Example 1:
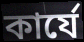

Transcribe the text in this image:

কার্যে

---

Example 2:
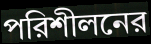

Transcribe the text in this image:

পরিশীলনের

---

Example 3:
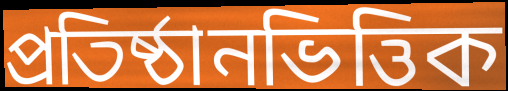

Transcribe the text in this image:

প্রতিষ্ঠানভিত্তিক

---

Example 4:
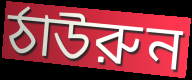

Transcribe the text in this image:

ঠাউরুন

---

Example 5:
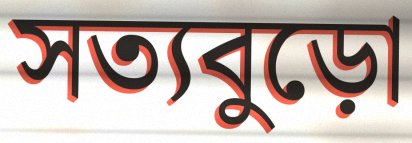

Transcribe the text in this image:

সত্যবুড়ো